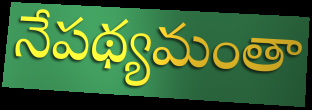
నేపథ్యమంతా